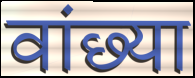
वांछ्या